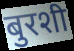
बुरशी